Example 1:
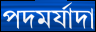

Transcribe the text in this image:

পদমর্যাদা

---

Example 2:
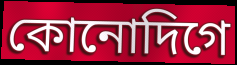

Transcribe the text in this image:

কোনোদিগে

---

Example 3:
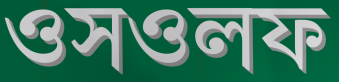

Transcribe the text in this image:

ওসওলফ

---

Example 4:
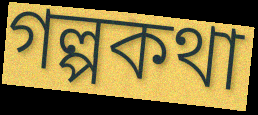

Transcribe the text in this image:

গল্পকথা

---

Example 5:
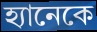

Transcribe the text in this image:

হ্যানেকে